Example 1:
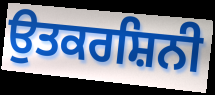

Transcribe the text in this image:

ਉਤਕਰਸ਼ਿਨੀ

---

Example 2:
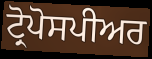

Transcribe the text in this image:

ਟ੍ਰੋਪੋਸਪੀਅਰ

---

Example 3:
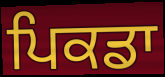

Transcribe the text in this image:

ਪਿਕਡਾ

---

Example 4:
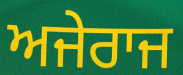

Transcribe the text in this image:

ਅਜੇਰਾਜ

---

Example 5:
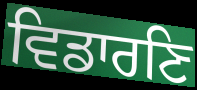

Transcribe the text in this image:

ਵਿਡਾਰਣਿ